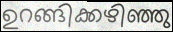
ഉറങ്ങിക്കഴിഞ്ഞു